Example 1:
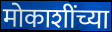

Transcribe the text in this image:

मोकाशींच्या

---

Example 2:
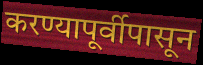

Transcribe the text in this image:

करण्यापूर्वीपासून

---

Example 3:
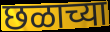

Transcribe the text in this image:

छळाच्या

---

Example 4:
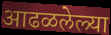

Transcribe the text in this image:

आढळलेल्या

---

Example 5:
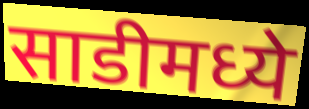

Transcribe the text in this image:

साडीमध्ये